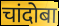
चांदोबा